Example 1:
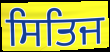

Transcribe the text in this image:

ਸਿਤਿਜ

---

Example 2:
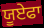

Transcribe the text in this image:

ਯੂਏਫਾ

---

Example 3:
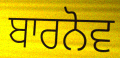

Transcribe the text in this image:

ਬਾਰਨੋਵ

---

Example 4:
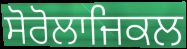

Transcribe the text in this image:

ਸੋਰੋਲਾਜਿਕਲ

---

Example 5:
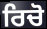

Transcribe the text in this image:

ਰਿਚੋ